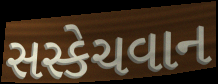
સસ્કેચવાન